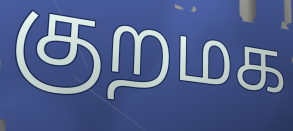
குறமக